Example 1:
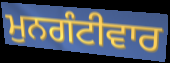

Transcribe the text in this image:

ਮੁਨਗੰਟੀਵਾਰ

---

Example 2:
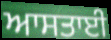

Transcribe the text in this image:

ਆਸਤਾਈ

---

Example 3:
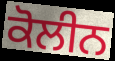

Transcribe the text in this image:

ਕੋਲੀਨ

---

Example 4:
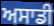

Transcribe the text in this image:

ਅਸਾਡੀ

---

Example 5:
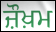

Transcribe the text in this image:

ਜ਼ੌਖ਼ਮ